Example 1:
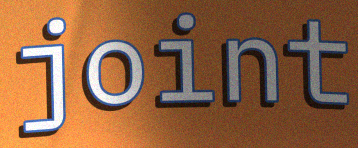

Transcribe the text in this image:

joint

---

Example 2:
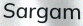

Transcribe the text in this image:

Sargam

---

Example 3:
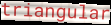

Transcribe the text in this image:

triangular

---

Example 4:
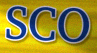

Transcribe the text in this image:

SCO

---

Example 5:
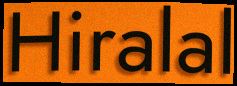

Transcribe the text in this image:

Hiralal